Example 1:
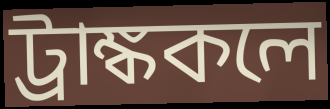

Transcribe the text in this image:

ট্রাঙ্ককলে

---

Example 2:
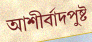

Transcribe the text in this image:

আশীর্বাদপুষ্ট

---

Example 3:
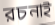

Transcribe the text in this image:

রচনাই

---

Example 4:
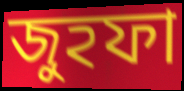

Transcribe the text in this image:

জুহফা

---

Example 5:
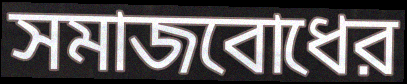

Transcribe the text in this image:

সমাজবোধের